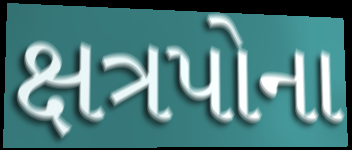
ક્ષત્રપોના